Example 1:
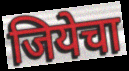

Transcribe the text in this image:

जियेचा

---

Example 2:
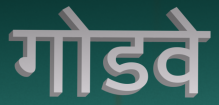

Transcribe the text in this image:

गोडवे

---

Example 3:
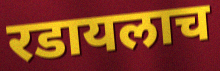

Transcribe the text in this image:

रडायलाच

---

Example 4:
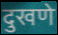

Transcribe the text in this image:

दुखणे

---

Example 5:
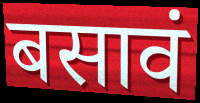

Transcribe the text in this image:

बसावं